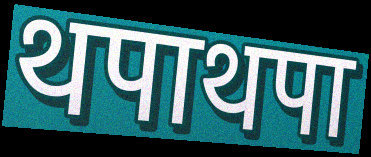
थपाथपा